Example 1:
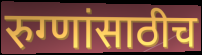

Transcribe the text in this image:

रुग्णांसाठीच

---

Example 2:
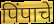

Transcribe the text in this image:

पिंपाचे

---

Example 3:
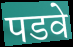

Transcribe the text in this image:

पडवे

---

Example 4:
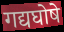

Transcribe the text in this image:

गद्यघोषे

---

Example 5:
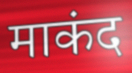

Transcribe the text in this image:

माकंद